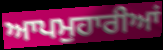
ਆਪਮੁਹਾਰੀਆਂ